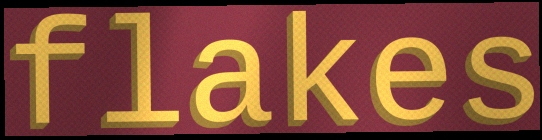
flakes